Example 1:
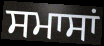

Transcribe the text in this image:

ਸਮਾਸਾਂ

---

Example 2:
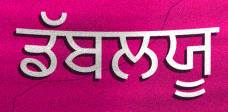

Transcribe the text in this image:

ਡੱਬਲਯੂ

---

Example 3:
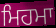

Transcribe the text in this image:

ਮਿਹਮਾ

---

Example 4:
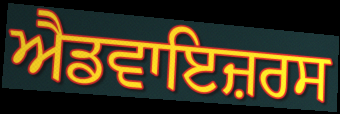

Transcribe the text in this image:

ਐਡਵਾਇਜ਼ਰਸ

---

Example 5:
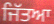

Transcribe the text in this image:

ਜਿੱਤਆ